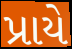
પ્રાયે